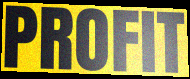
PROFIT